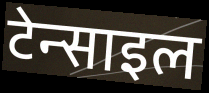
टेन्साइल